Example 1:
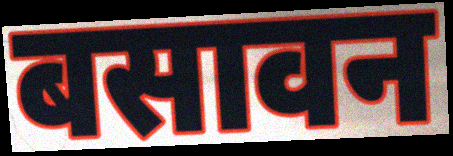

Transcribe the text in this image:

बसावन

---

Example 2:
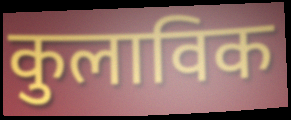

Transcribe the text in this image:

कुलाविक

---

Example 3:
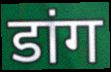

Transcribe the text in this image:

डांग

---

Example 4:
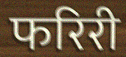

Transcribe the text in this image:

फरिरी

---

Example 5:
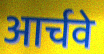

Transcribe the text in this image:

आर्चवे